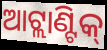
ଆଟ୍ଲାଣ୍ଟିକ୍